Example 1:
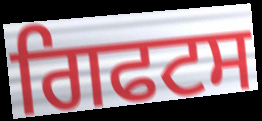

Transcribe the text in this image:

ਗਿਫਟਸ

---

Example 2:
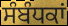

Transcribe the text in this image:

ਸੰਬੰਧਕਾਂ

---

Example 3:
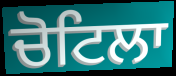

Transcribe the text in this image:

ਚੋਟਿਲਾ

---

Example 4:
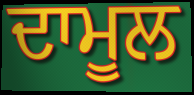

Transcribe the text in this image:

ਦਾਮੂਲ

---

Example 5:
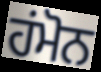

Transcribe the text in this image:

ਹਂਮੋਨ